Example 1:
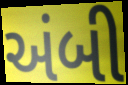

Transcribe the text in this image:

અંબી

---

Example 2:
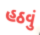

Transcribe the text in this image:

હઠવું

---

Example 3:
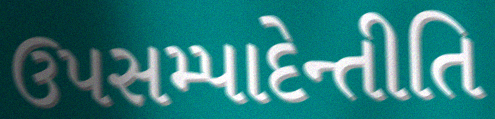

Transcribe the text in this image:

ઉપસમ્પાદેન્તીતિ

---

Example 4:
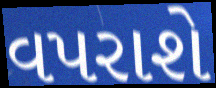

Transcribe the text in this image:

વપરાશે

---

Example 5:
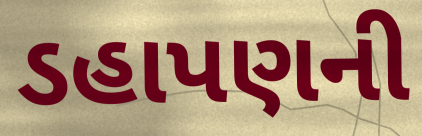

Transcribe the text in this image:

ડહાપણની